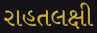
રાહતલક્ષી